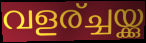
വളര്ച്ചയ്ക്കു